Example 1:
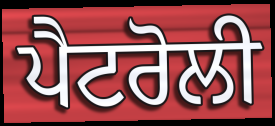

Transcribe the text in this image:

ਪੈਟਰੋਲੀ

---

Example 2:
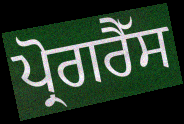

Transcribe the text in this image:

ਪ੍ਰੋਗਰੈੱਸ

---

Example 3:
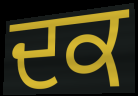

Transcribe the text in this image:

ਦਕ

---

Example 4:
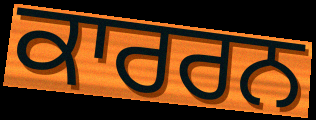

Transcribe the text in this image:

ਕਾਰਰਨ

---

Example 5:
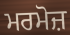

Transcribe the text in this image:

ਮਰਮੋਜ਼